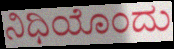
ನಿಧಿಯೊಂದು